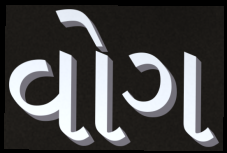
વોગ